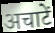
अचाटें